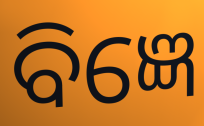
ବିଜ୍ଞେ